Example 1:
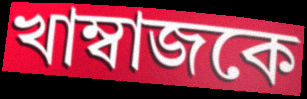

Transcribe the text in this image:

খাম্বাজকে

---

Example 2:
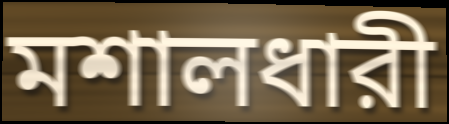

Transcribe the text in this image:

মশালধারী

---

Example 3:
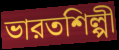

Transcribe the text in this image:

ভারতশিল্পী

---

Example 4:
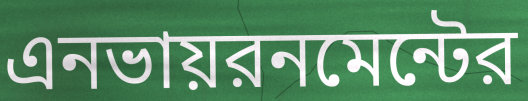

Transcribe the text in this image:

এনভায়রনমেন্টের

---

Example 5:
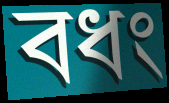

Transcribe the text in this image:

বধং